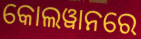
କୋଲୱାନରେ